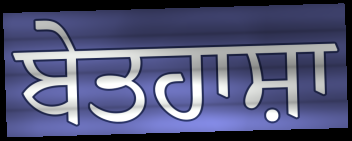
ਬੇਤਹਾਸ਼ਾ